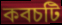
কবচটি